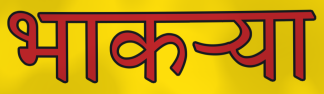
भाकऱ्या